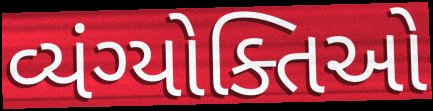
વ્યંગ્યોક્તિઓ